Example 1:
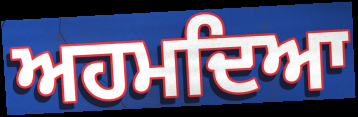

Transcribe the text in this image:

ਅਹਮਦਿਆ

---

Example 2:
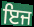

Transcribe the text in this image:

ਇਜ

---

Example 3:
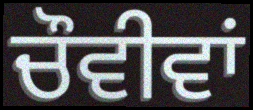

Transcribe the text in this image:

ਚੌਵੀਵਾਂ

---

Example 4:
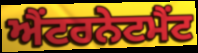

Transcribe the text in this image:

ਐਂਟਰਨੇਟਮੈਂਟ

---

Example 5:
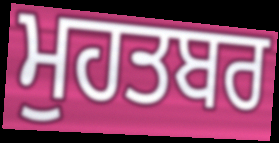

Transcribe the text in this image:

ਮੁਹਤਬਰ